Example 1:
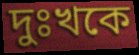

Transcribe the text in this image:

দুঃখকে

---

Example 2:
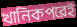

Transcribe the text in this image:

খানিকপরেই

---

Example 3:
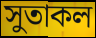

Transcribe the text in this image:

সুতাকল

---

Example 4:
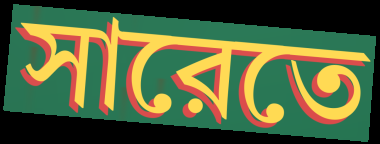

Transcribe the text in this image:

সারেতে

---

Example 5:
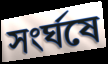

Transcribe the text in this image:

সংর্ঘষে